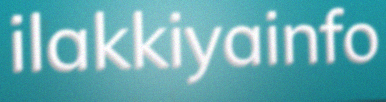
ilakkiyainfo